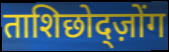
ताशिछोद्ज़ोंग